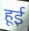
हूई